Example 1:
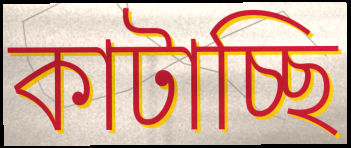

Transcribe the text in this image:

কাটাচ্ছি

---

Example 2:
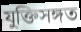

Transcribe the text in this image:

যুক্তিসঙ্গত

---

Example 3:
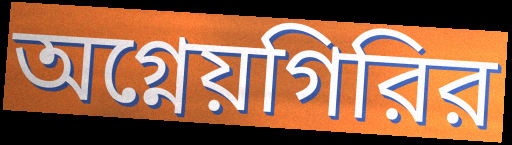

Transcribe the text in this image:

অগ্নেয়গিরির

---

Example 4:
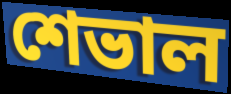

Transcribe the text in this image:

শেভাল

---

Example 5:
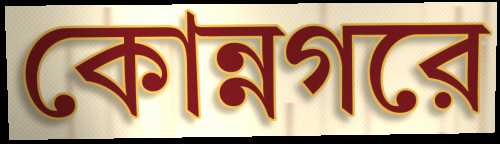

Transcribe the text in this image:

কোন্নগরে